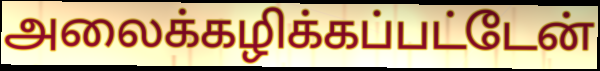
அலைக்கழிக்கப்பட்டேன்